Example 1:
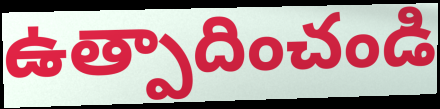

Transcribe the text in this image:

ఉత్పాదించండి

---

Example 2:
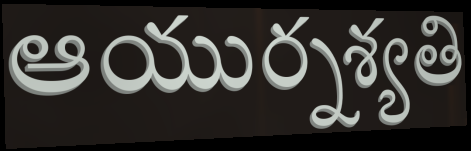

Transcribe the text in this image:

ఆయుర్నశ్యతి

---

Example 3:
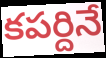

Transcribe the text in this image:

కపర్దినే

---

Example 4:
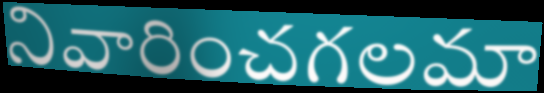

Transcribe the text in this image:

నివారించగలమా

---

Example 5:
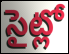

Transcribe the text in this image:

సైట్లో